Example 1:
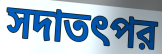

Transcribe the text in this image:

সদাতৎপর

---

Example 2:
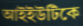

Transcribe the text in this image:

আইইউটিকে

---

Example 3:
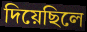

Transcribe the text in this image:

দিয়েছিলে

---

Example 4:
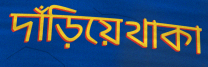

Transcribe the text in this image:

দাঁড়িয়েথাকা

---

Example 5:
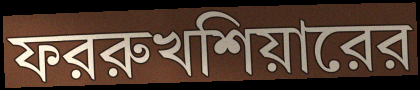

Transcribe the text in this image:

ফররুখশিয়ারের